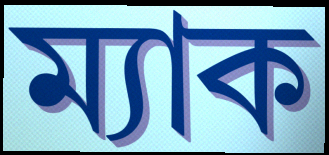
ম্যাক